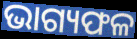
ଭାଗ୍ୟଫଳ